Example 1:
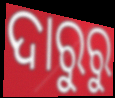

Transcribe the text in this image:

ଦାରୁରୁ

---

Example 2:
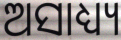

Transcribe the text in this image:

ଅସାଧ୍ୟ୍ୟ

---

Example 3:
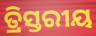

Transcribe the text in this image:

ତ୍ରିସ୍ତରୀୟ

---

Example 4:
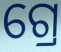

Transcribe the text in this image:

ଗ୍ରେ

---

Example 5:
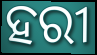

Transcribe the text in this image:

ହରୀ